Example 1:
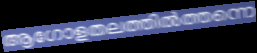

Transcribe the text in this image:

ആഗോളതലത്തിൽത്തന്നെ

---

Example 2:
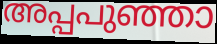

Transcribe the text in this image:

അപ്പപുഞ്ഞാ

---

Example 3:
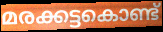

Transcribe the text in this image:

മരക്കട്ടകൊണ്ട്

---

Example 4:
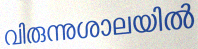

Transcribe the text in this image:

വിരുന്നുശാലയിൽ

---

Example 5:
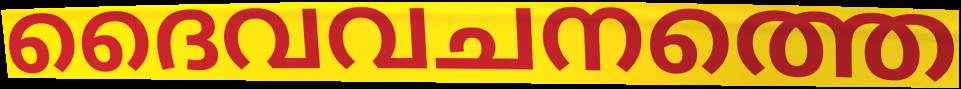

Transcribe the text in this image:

ദൈവവചനത്തെ